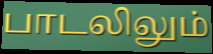
பாடலிலும்